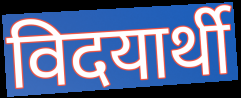
विदयार्थी